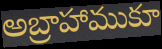
అబ్రాహాముకూ